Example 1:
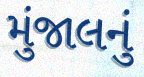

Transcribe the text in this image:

મુંજાલનું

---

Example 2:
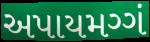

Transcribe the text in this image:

અપાયમગ્ગં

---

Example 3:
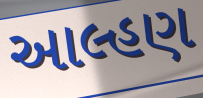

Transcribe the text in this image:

આલ્હણ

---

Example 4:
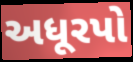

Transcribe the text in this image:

અધૂરપો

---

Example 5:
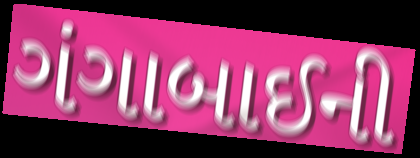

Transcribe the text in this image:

ગંગાબાઈની